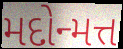
મદોન્મત્ત